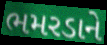
ભમરડાને